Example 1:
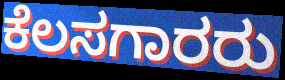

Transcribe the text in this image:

ಕೆಲಸಗಾರರು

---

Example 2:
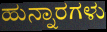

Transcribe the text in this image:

ಹುನ್ನಾರಗಳು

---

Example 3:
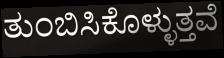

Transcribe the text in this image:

ತುಂಬಿಸಿಕೊಳ್ಳುತ್ತವೆ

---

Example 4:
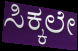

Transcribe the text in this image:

ಸಿಕ್ಕಲೇ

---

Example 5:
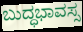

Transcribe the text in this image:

ಬುದ್ಧಭಾವಸ್ಸ